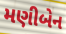
મણીબેન